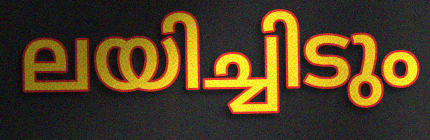
ലയിച്ചിടും